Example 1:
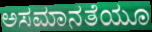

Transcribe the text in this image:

ಅಸಮಾನತೆಯೂ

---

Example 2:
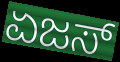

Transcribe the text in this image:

ಏಜಸ್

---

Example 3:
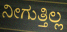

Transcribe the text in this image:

ನೀಗುತ್ತಿಲ್ಲ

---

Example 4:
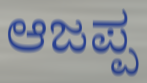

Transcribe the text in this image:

ಆಜಪ್ಪ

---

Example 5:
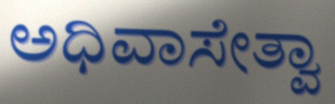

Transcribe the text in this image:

ಅಧಿವಾಸೇತ್ವಾ